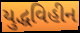
યુદ્ધવિહીન